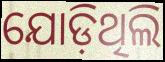
ଯୋଡ଼ିଥିଲି